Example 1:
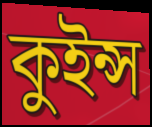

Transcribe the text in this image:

কুইন্স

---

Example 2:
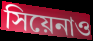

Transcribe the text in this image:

সিয়েনাও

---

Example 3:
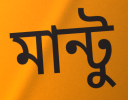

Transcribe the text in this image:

মান্টু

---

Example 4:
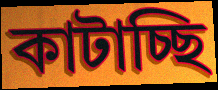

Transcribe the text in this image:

কাটাচ্ছি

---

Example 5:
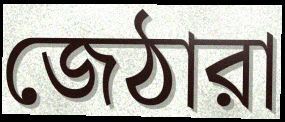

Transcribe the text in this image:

জেঠারা